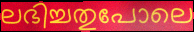
ലഭിച്ചതുപോലെ